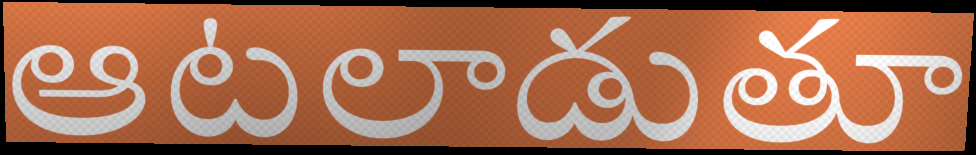
ఆటలాడుతూ